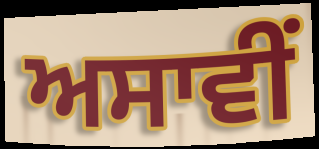
ਅਸਾਵੀਂ